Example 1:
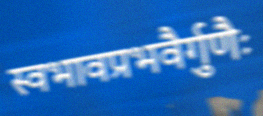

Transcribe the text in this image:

स्वभावप्रभवैर्गुणैः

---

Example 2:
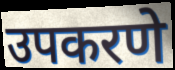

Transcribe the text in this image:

उपकरणे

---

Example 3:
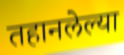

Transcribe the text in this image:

तहानलेल्या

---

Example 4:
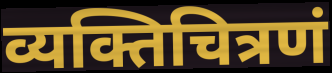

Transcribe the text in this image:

व्यक्तिचित्रणं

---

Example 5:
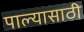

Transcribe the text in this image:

पाल्यासाठी